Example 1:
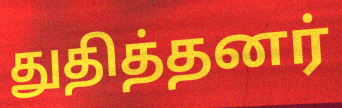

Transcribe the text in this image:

துதித்தனர்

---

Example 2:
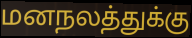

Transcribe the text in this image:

மனநலத்துக்கு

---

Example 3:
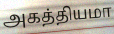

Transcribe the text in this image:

அகத்தியமா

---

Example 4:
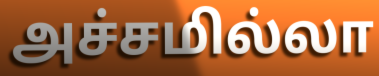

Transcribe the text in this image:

அச்சமில்லா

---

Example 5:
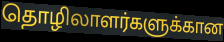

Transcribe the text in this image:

தொழிலாளர்களுக்கான